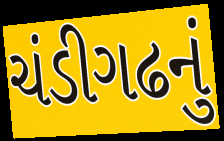
ચંડીગઢનું